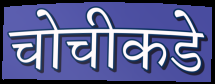
चोचीकडे